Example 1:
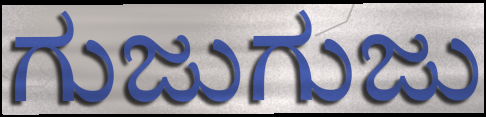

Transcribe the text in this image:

ಗುಜುಗುಜು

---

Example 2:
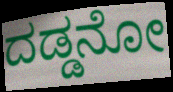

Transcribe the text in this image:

ದಡ್ಡನೋ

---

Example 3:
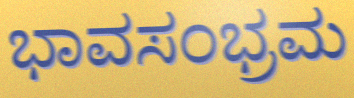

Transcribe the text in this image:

ಭಾವಸಂಭ್ರಮ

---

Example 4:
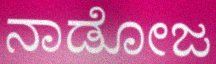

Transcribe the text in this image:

ನಾಡೋಜ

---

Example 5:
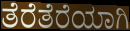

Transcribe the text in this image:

ತೆರೆತೆರೆಯಾಗಿ